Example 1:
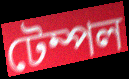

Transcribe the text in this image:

টেম্পল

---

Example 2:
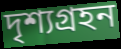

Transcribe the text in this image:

দৃশ্যগ্ৰহন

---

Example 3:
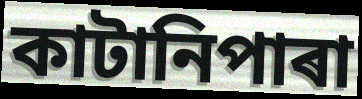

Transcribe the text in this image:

কাটানিপাৰা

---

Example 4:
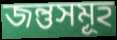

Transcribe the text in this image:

জন্তুসমূহ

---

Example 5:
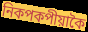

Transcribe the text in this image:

নিকপকপীয়াকৈ